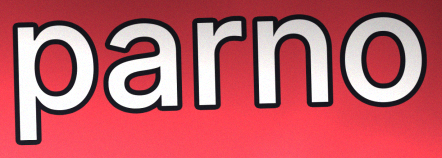
parno